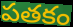
పతకం